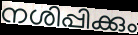
നശിപ്പിക്കും